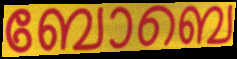
ബോബെ